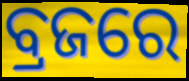
ବ୍ରଜରେ